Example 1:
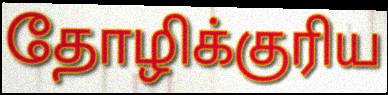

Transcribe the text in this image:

தோழிக்குரிய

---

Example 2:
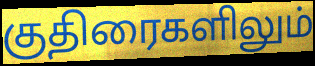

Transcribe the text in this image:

குதிரைகளிலும்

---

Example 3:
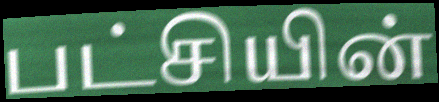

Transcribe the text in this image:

பட்சியின்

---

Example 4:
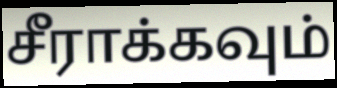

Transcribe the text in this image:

சீராக்கவும்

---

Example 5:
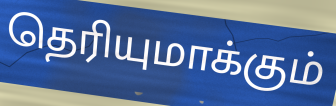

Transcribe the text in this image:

தெரியுமாக்கும்